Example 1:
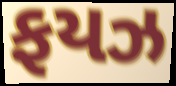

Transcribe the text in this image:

ફયઝ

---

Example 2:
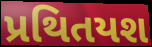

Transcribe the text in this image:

પ્રથિતયશ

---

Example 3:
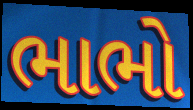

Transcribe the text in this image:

ભાભો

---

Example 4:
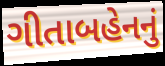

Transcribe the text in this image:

ગીતાબહેનનું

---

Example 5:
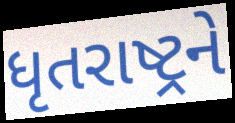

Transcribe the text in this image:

ધૃતરાષ્ટ્રને